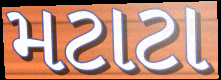
મટાટા